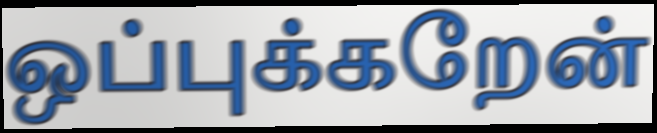
ஒப்புக்கறேன்